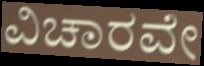
ವಿಚಾರವೇ